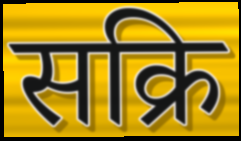
सक्रि